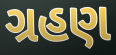
ગ્રહણ